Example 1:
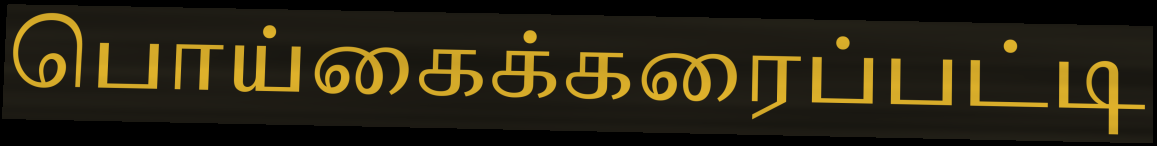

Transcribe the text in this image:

பொய்கைக்கரைப்பட்டி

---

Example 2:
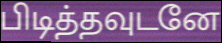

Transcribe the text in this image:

பிடித்தவுடனே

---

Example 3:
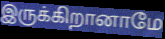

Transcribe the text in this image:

இருக்கிறானாமே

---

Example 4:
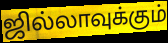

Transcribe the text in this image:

ஜில்லாவுக்கும்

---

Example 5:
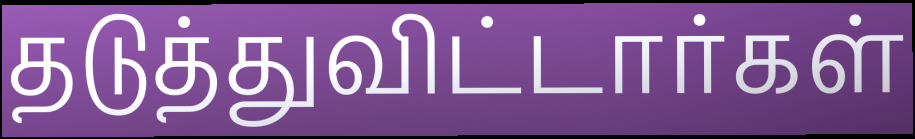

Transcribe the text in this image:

தடுத்துவிட்டார்கள்